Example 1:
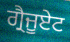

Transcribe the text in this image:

ਗ੍ਰੈਜੂਏਟ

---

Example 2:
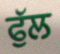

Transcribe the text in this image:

ਫੁੱਲ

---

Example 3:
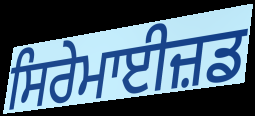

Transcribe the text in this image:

ਸਿਰੇਮਾਈਜ਼ਡ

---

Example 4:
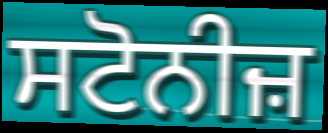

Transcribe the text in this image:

ਸਟੋਨੀਜ਼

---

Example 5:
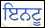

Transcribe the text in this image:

ਇਨਟੂ